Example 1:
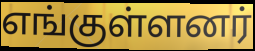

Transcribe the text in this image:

எங்குள்ளனர்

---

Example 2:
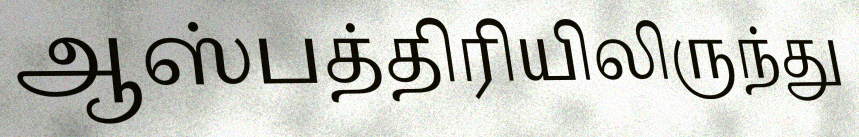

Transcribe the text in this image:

ஆஸ்பத்திரியிலிருந்து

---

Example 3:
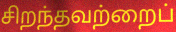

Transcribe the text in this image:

சிறந்தவற்றைப்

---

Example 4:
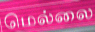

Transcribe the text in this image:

மெல்லை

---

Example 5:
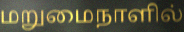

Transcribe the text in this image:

மறுமைநாளில்